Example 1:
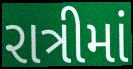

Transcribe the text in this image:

રાત્રીમાં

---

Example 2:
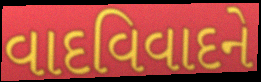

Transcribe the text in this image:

વાદવિવાદને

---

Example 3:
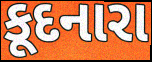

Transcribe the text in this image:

કૂદનારા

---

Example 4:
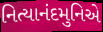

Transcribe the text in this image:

નિત્યાનંદમુનિએ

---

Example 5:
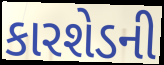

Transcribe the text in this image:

કારશેડની